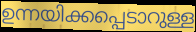
ഉന്നയിക്കപ്പെടാറുള്ള